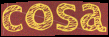
cosa